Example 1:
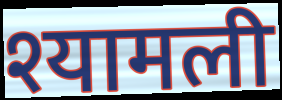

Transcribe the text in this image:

श्यामली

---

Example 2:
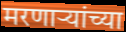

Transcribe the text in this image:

मरणाऱ्यांच्या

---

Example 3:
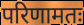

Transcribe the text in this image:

परिणामतः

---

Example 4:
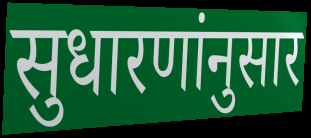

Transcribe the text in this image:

सुधारणांनुसार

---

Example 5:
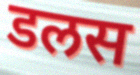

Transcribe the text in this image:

डलस